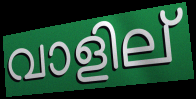
വാളില്